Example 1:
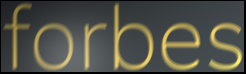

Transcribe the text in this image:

forbes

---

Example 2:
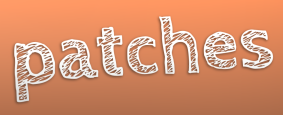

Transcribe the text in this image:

patches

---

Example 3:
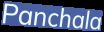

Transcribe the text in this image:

Panchala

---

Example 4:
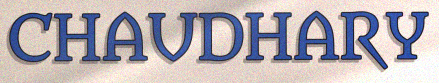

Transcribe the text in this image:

CHAUDHARY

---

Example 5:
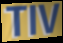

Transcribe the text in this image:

TIV